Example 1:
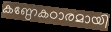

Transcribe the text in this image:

കണ്ഠേകഠാരമായി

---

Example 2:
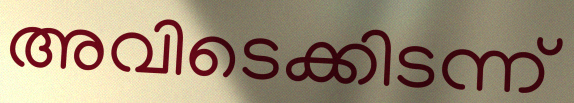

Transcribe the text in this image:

അവിടെക്കിടന്ന്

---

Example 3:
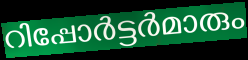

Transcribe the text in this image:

റിപ്പോർട്ടർമാരും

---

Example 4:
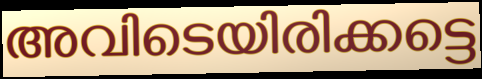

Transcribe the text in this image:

അവിടെയിരിക്കട്ടെ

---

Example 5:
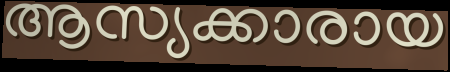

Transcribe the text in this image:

ആസ്യക്കാരായ